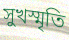
সুখস্মৃতি